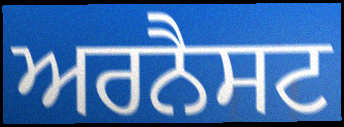
ਅਰਨੈਸਟ